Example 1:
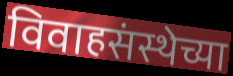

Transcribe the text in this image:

विवाहसंस्थेच्या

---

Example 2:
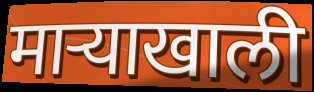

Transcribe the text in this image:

माऱ्याखाली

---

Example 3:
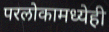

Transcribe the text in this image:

परलोकामध्येही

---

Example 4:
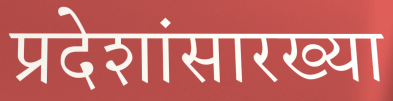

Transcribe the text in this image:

प्रदेशांसारख्या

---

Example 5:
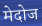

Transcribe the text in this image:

मेदोज